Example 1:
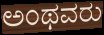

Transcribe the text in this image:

ಅಂಥವರು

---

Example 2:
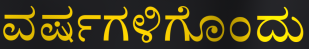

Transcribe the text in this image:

ವರ್ಷಗಳಿಗೊಂದು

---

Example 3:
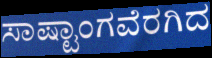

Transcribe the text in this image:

ಸಾಷ್ಟಾಂಗವೆರಗಿದ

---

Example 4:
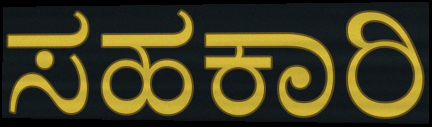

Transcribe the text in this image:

ಸಹಕಾರಿ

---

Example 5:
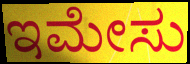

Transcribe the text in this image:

ಇಮೇಸು